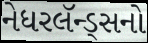
નેધરલૅન્ડ્સનો